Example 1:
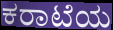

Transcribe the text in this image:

ಕರಾಟೆಯ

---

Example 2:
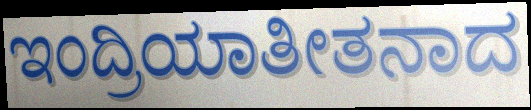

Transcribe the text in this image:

ಇಂದ್ರಿಯಾತೀತನಾದ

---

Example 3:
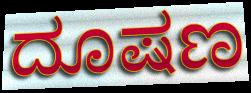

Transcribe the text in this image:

ದೂಷಣ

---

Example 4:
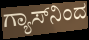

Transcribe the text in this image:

ಗ್ಯಾಸ್‌ನಿಂದ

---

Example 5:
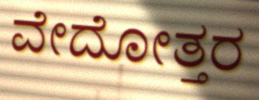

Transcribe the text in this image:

ವೇದೋತ್ತರ